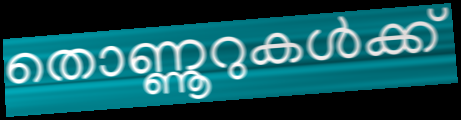
തൊണ്ണൂറുകൾക്ക്